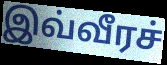
இவ்வீரச்